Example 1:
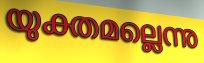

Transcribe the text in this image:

യുക്തമല്ലെന്നു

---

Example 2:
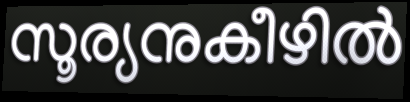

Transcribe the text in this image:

സൂര്യനുകീഴിൽ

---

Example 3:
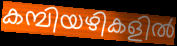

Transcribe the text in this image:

കമ്പിയഴികളിൽ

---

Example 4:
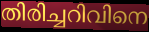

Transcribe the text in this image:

തിരിച്ചറിവിനെ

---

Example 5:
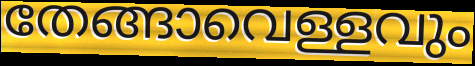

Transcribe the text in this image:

തേങ്ങാവെള്ളവും